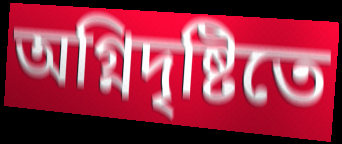
অগ্নিদৃষ্টিতে